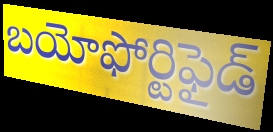
బయోఫోర్టిఫైడ్